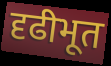
दृढीभूत